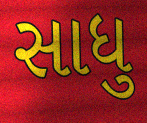
સાધુ